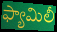
ఫ్యామిలీ